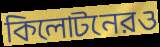
কিলোটনেরও